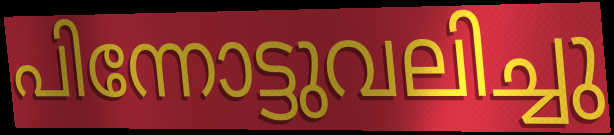
പിന്നോട്ടുവലിച്ചു